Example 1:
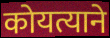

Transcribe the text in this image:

कोयत्याने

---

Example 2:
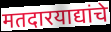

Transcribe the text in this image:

मतदारयाद्यांचे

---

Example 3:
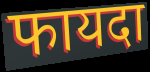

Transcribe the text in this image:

फायदा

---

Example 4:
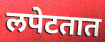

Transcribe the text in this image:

लपेटतात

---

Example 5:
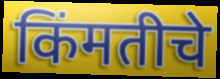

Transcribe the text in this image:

किंमतीचे